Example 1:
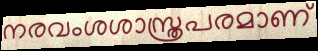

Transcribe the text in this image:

നരവംശശാസ്ത്രപരമാണ്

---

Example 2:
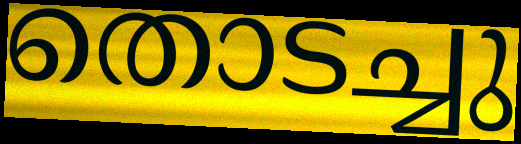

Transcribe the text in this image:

തൊടച്ചു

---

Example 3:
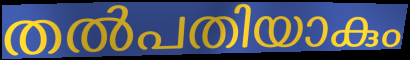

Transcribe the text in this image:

തൽപതിയാകും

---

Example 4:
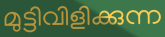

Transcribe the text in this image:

മുട്ടിവിളിക്കുന്ന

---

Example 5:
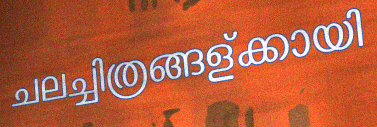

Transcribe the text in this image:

ചലച്ചിത്രങ്ങള്ക്കായി